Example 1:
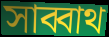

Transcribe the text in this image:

সাব্বাথ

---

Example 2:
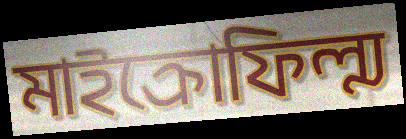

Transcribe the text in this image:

মাইক্রোফিল্ম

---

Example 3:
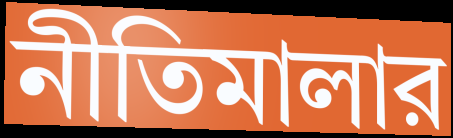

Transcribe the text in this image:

নীতিমালার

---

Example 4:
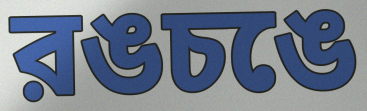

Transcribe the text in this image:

রঙচঙে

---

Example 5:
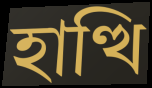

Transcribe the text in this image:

হাত্থি